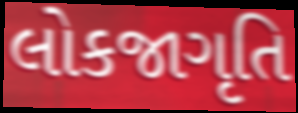
લોકજાગૃતિ